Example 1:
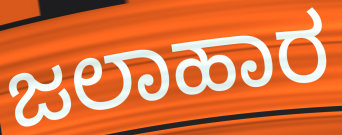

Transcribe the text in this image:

ಜಲಾಹಾರ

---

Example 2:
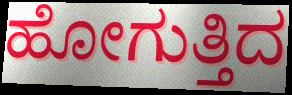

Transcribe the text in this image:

ಹೋಗುತ್ತಿದ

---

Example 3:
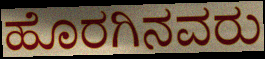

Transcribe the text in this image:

ಹೊರಗಿನವರು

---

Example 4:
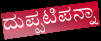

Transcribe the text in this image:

ದುಪ್ಪಟಿಪನ್ನಾ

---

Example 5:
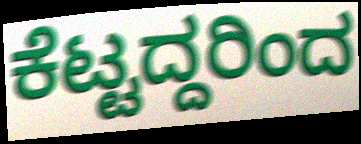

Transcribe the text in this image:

ಕೆಟ್ಟದ್ದರಿಂದ